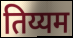
तिय्यम